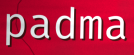
padma